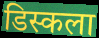
डिस्कला